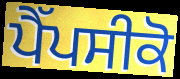
ਪੈੱਪਸੀਕੋ